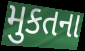
મુકતના